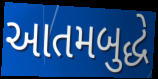
આતમબુદ્ધે